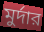
মুর্দার